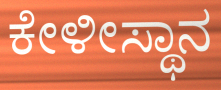
ಕೇಳೀಸ್ಥಾನ